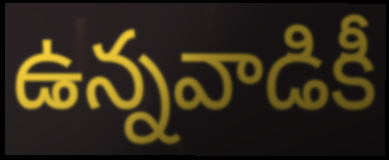
ఉన్నవాడికీ